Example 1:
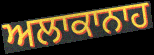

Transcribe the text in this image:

ਅਲਾਕਾਨਾਹ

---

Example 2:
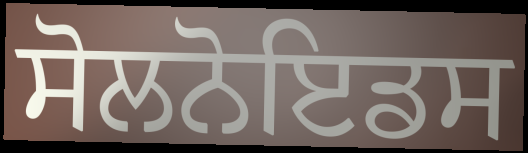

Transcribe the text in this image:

ਸੋਲਨੋਇਡਸ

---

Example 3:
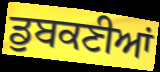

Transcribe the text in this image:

ਡੁਬਕਣੀਆਂ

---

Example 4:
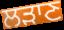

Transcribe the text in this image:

ਲੜਾਣ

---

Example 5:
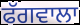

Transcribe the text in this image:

ਫੱਗਵਾਲਾ